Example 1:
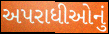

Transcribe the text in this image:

અપરાધીઓનું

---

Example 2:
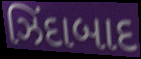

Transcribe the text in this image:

ઝિંદાબાદ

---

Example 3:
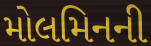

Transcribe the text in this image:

મોલમિનની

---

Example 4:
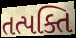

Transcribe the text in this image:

તત્પક્તિ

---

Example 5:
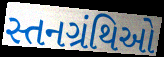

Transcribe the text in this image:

સ્તનગ્રંથિઓ